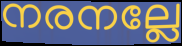
നരനല്ലേ